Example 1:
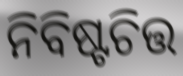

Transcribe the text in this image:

ନିବିଷ୍ଟଚିତ୍ତ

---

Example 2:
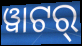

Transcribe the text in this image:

ୱାଟର୍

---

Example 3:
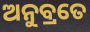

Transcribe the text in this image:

ଅନୁବ୍ରତେ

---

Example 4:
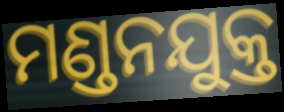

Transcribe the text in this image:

ମଣ୍ଡନଯୁକ୍ତ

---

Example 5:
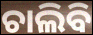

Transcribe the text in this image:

ଚାଲିବି